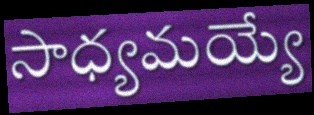
సాధ్యమయ్యే